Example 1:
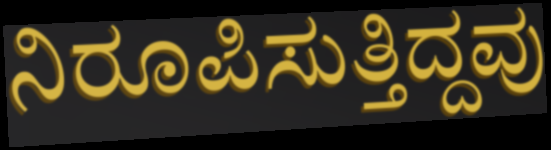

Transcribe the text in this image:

ನಿರೂಪಿಸುತ್ತಿದ್ದವು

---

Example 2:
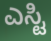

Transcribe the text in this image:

ಎಸ್ಟಿ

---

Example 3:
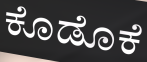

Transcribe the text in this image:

ಕೊಡೊಕೆ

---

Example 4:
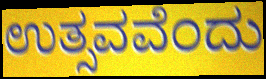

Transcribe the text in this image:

ಉತ್ಸವವೆಂದು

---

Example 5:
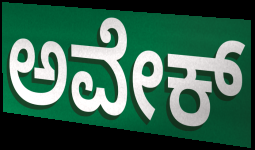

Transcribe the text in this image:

ಅವೇಕ್